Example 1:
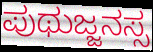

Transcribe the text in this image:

ಪುಥುಜ್ಜನಸ್ಸ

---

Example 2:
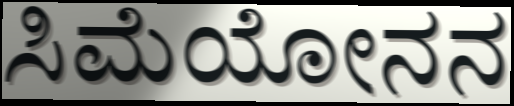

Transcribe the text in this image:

ಸಿಮೆಯೋನನ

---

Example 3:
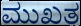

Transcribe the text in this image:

ಮುಖತ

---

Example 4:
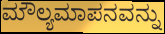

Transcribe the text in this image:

ಮೌಲ್ಯಮಾಪನವನ್ನು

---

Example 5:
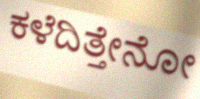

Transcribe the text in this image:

ಕಳೆದಿತ್ತೇನೋ